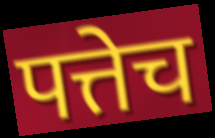
पत्तेच